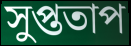
সুপ্ততাপ